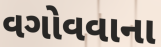
વગોવવાના